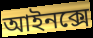
আইনক্সে